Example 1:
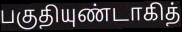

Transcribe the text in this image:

பகுதியுண்டாகித்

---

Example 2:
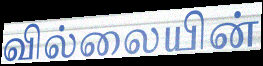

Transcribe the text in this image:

வில்லையின்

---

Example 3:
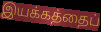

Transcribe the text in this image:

இயக்கத்தைப்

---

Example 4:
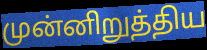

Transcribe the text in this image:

முன்னிறுத்திய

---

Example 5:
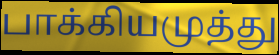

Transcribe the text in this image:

பாக்கியமுத்து